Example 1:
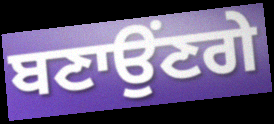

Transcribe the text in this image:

ਬਣਾਉਂਣਗੇ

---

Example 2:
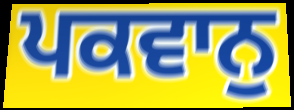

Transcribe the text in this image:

ਪਕਵਾਨੁ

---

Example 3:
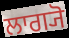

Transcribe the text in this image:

ਲਾਗ੍ਯੋ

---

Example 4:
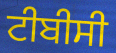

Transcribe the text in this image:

ਟੀਬੀਸੀ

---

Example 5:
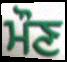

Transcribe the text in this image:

ਮੌਣ